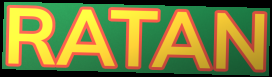
RATAN